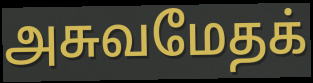
அசுவமேதக்